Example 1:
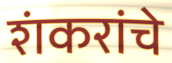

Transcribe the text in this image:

शंकरांचे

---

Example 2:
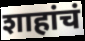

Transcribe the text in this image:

शाहांचं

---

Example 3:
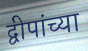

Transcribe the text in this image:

द्वीपांच्या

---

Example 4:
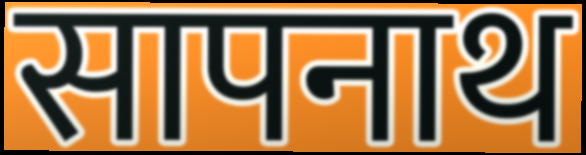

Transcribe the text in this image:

सापनाथ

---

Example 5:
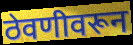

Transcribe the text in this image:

ठेवणीवरून